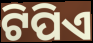
ଟିପିଏ